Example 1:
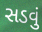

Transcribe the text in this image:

સડવું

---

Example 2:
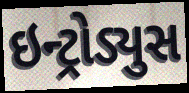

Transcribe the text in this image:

ઇન્ટ્રોડ્યુસ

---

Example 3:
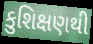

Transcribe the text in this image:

કુશિક્ષણથી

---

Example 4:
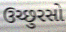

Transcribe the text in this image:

ઉચ્છુરસો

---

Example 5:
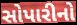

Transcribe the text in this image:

સોપારીનો